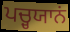
ਪਚ੍ਚਯਾਨਂ